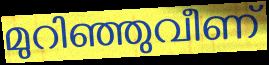
മുറിഞ്ഞുവീണ്